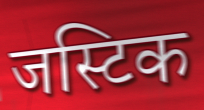
जस्टिक